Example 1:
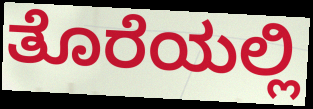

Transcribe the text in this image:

ತೊರೆಯಲ್ಲಿ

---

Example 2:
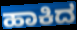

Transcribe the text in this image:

ಹಾಕಿದ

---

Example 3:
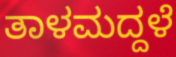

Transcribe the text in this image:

ತಾಳಮದ್ದಳೆ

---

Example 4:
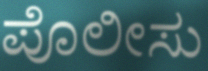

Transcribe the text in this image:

ಪೊಲೀಸು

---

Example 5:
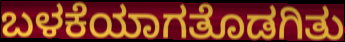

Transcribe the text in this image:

ಬಳಕೆಯಾಗತೊಡಗಿತು